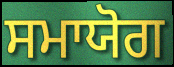
ਸਮਾਯੋਗ